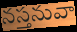
నస్తనువా